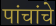
पांचांचे